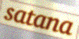
satana